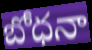
బోధనా